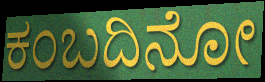
ಕಂಬದಿನೋ